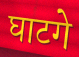
घाटगे